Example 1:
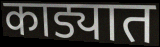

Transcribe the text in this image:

काड्यात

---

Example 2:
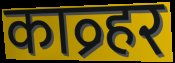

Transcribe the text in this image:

काव्र्हर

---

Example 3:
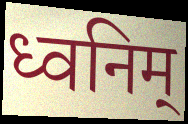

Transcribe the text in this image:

ध्वनिम्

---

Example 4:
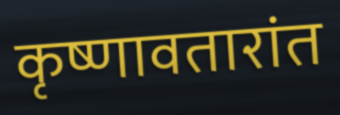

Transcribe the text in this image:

कृष्णावतारांत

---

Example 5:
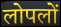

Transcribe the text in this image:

लोपलों